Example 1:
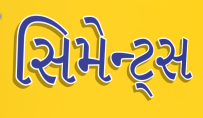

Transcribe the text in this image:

સિમેન્ટ્સ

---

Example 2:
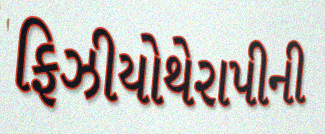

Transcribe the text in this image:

ફિઝીયોથેરાપીની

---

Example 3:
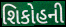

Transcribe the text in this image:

શિકોહની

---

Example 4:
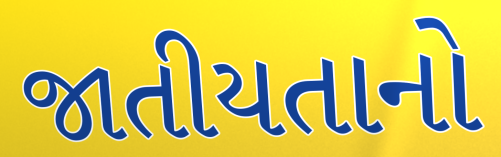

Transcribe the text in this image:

જાતીયતાનો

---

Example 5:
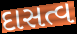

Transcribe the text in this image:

દાસત્વ